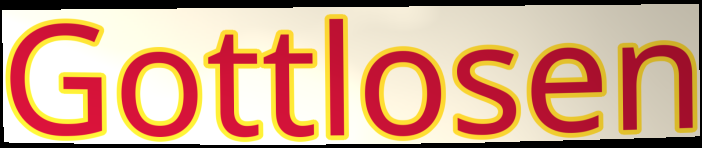
Gottlosen